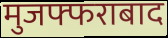
मुजफ्फराबाद